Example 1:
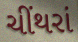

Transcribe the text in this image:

ચીંથરાં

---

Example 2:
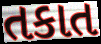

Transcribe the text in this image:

તકાત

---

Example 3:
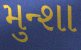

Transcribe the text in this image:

મુન્શા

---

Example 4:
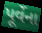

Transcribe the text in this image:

પૂર્વેના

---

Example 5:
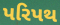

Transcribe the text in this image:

પરિપથ